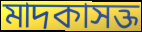
মাদকাসক্ত